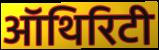
ऑथिरिटी